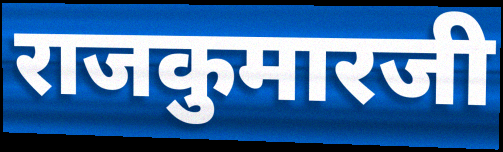
राजकुमारजी